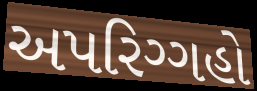
અપરિગ્ગહો